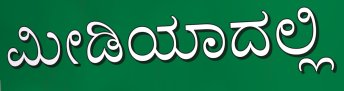
ಮೀಡಿಯಾದಲ್ಲಿ